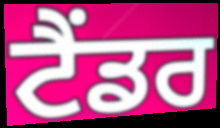
ਟੈਂਡਰ